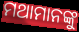
ମଥାମାନଙ୍କୁ